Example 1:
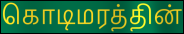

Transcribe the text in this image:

கொடிமரத்தின்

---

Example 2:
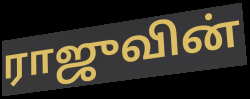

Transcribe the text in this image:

ராஜுவின்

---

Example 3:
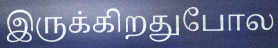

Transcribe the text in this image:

இருக்கிறதுபோல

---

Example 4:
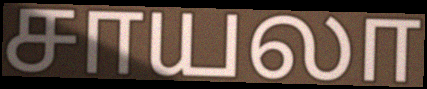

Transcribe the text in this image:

சாயலா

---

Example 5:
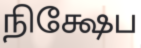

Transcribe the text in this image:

நிக்ஷேப